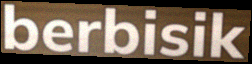
berbisik